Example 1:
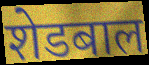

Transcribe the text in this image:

शेडबाल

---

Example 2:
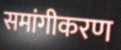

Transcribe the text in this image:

समांगीकरण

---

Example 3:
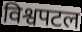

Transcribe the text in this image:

विश्वपटल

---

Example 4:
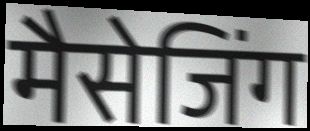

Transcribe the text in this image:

मैसेजिंग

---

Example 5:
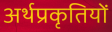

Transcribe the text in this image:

अर्थप्रकृतियों